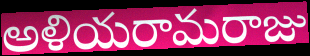
అళియరామరాజు